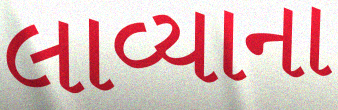
લાવ્યાના